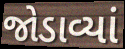
જોડાવ્યાં